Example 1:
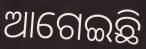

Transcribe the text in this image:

ଆଗେଇଛି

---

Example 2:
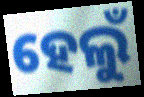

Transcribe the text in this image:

ହେଲୁଁ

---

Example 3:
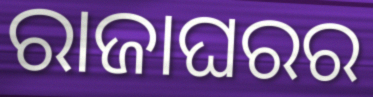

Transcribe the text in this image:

ରାଜାଘରର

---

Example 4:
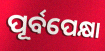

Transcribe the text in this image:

ପୂର୍ବପେକ୍ଷା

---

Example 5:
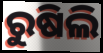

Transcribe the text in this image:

ରୁଷିଲି